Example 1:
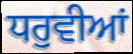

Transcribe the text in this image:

ਧਰੁਵੀਆਂ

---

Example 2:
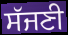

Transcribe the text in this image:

ਸੱਜਣੀ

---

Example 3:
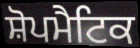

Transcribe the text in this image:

ਸ਼ੋਪਮੈਟਿਕ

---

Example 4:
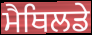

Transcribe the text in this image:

ਮੈਥਿਲਡੇ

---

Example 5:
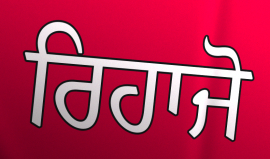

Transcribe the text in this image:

ਰਿਹਾਜੋ